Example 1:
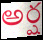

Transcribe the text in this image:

అర్ష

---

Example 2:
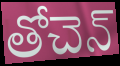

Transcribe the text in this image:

తోచెన్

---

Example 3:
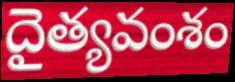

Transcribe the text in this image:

దైత్యవంశం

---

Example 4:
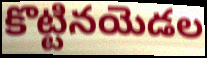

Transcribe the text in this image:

కొట్టినయెడల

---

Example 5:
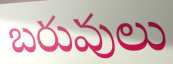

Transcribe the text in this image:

బరువులు